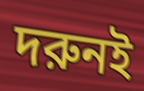
দরুনই